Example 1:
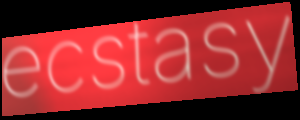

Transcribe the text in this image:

ecstasy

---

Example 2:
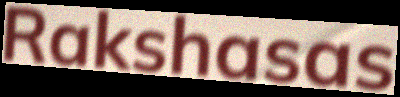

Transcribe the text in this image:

Rakshasas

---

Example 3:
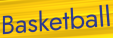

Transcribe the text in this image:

Basketball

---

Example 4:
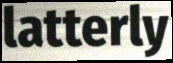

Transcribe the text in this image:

latterly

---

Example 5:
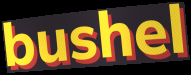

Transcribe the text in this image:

bushel